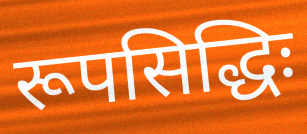
रूपसिद्धिः